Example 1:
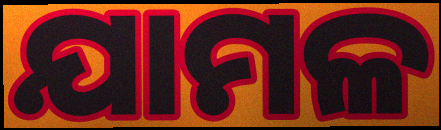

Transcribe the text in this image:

ଯାମଳ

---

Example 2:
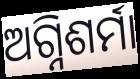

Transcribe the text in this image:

ଅଗ୍ନିଶର୍ମା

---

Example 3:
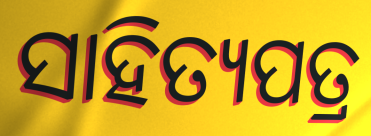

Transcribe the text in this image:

ସାହିତ୍ୟପତ୍ର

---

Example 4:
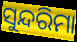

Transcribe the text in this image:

ସୁନ୍ଦରିମା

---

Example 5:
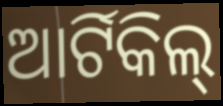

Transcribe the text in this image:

ଆର୍ଟିକିଲ୍